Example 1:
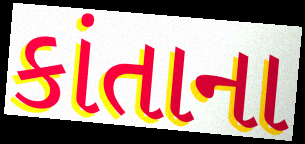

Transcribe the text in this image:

કાંતાના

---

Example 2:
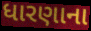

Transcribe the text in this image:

ધારણાના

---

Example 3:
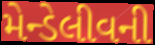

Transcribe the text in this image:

મેન્ડેલીવની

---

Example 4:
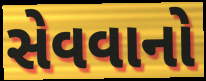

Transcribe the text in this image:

સેવવાનો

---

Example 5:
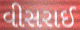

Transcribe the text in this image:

વીસરાઈ